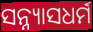
ସନ୍ନ୍ୟାସଧର୍ମ